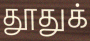
தூதுக்